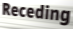
Receding